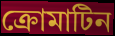
ক্রোমাটিন